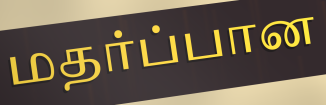
மதர்ப்பான